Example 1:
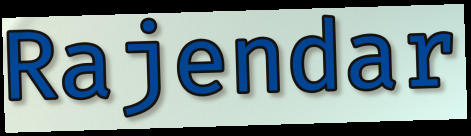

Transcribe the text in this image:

Rajendar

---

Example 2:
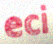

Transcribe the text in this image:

eci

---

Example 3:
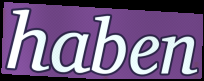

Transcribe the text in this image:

haben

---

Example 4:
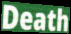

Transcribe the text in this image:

Death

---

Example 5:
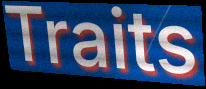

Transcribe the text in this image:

Traits